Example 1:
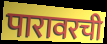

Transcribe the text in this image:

पारावरची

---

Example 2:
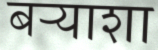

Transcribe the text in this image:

बऱ्याशा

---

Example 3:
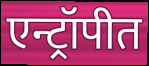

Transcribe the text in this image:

एन्ट्रॉपीत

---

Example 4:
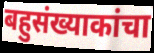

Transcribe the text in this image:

बहुसंख्याकांचा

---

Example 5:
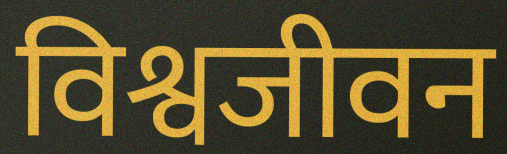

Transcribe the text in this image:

विश्वजीवन